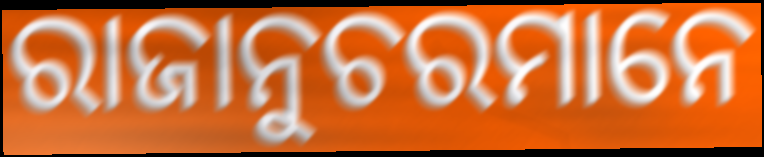
ରାଜାନୁଚରମାନେ